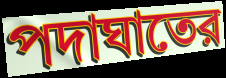
পদাঘাতের